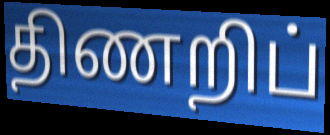
திணறிப்